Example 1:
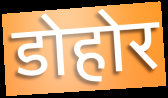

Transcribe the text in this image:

डोहोर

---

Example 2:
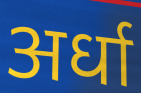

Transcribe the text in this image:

अर्धा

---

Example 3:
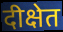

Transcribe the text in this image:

दीक्षेत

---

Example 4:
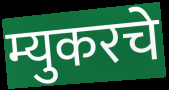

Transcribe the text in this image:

म्युकरचे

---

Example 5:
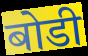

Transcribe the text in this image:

बोडी